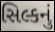
સિલ્કનું